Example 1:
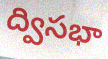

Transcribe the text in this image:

ద్విసభా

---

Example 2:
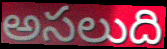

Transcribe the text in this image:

అసలుది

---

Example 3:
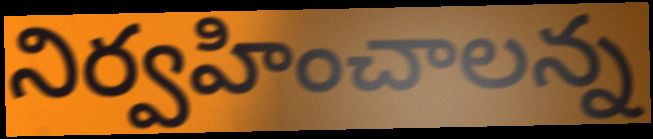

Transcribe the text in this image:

నిర్వహించాలన్న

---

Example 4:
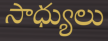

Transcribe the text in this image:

సాధ్యులు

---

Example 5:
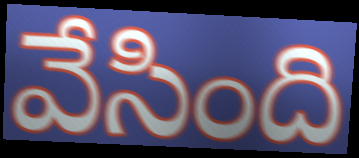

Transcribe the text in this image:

వేసింది